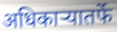
अधिकाऱ्यातर्फे